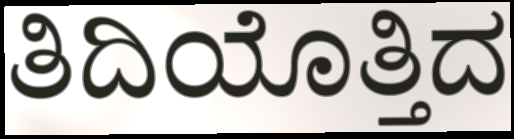
ತಿದಿಯೊತ್ತಿದ